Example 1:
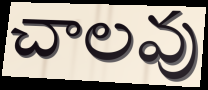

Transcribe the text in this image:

చాలవు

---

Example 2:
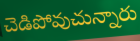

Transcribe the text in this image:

చెడిపోవుచున్నారు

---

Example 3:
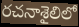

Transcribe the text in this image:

రచనాశైలిలో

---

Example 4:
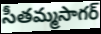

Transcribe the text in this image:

సీతమ్మసాగర్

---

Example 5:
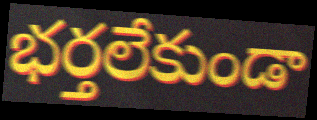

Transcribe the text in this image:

భర్తలేకుండా